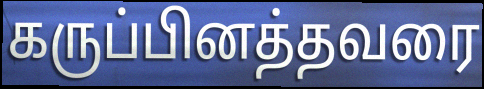
கருப்பினத்தவரை